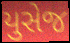
યુસેજ